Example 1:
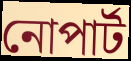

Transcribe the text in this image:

নোপার্ট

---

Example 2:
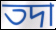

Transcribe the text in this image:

তদা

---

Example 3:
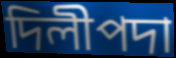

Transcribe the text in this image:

দিলীপদা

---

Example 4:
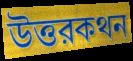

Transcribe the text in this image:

উত্তরকথন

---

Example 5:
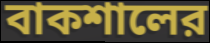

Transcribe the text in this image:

বাকশালের